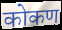
कोकण